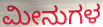
ಮೀನುಗಳ